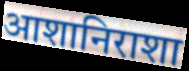
आशानिराशा